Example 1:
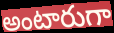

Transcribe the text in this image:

అంటారుగా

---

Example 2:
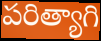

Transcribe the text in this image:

పరిత్యాగి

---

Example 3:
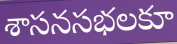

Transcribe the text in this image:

శాసనసభలకూ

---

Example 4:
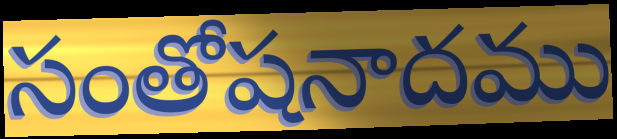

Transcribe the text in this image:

సంతోషనాదము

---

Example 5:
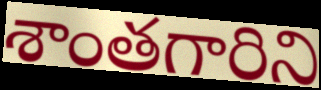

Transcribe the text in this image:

శాంతగారిని